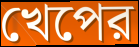
খেপের